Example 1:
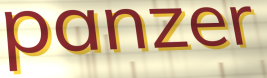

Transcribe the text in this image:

panzer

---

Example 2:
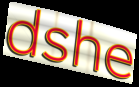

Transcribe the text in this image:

dshe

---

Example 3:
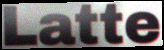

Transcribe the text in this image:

Latte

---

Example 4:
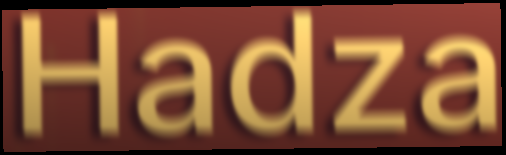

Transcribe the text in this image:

Hadza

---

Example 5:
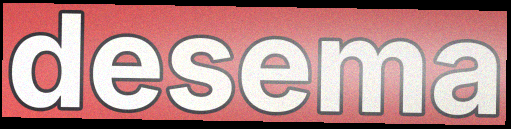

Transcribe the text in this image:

desema